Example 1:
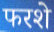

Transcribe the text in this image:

फरशे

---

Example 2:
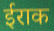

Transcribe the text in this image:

ईराक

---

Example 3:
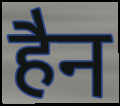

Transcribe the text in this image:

हैन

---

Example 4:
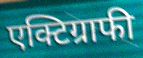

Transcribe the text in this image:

एक्टिग्राफी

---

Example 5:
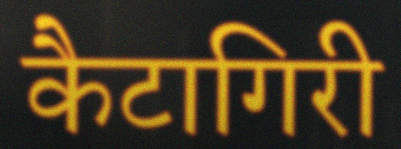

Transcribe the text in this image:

कैटागिरी